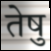
तेषु